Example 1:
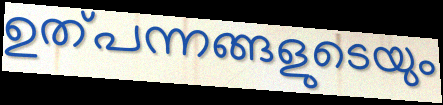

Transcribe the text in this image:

ഉത്പന്നങ്ങളുടെയും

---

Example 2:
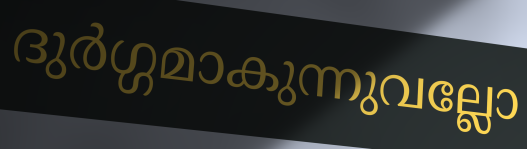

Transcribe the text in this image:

ദുർഗ്ഗമാകുന്നുവല്ലോ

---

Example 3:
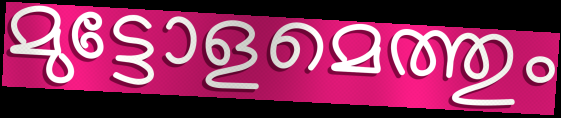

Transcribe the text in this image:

മുട്ടോളമെത്തും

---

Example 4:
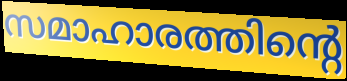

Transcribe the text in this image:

സമാഹാരത്തിന്റെ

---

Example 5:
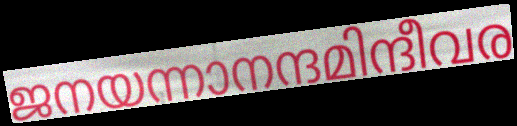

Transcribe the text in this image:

ജനയന്നാനന്ദമിന്ദീവര